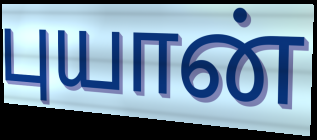
புயான்